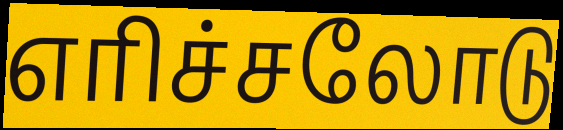
எரிச்சலோடு